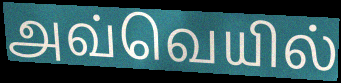
அவ்வெயில்